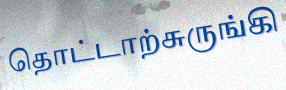
தொட்டாற்சுருங்கி